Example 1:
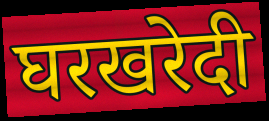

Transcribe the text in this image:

घरखरेदी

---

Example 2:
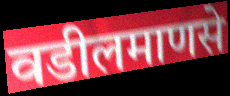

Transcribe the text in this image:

वडीलमाणसे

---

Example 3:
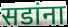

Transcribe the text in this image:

सडांना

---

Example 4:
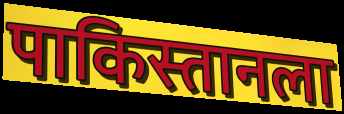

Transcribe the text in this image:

पाकिस्तानला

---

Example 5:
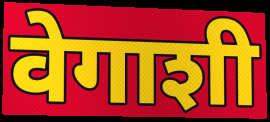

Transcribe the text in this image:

वेगाशी